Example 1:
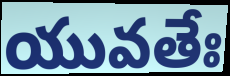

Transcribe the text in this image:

యువతేః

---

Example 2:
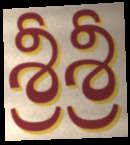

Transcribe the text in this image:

శ్రీశ్రీ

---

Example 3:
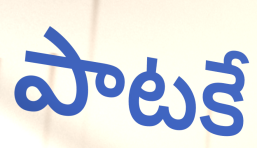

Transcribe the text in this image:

పాటకే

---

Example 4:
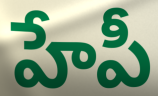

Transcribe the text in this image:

హేపీ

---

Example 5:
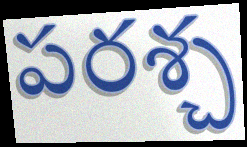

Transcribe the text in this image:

పరశ్చ